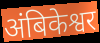
अंबिकेश्वर